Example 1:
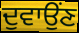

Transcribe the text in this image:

ਦੁਵਾਉਂਣ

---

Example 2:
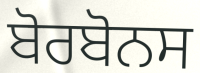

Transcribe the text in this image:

ਬੋਰਬੋਨਸ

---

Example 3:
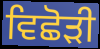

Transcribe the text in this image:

ਵਿਛੋੜੀ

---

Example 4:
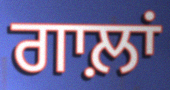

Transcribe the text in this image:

ਗਾਲ਼ਾਂ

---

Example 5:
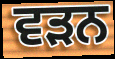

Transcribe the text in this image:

ਵੜਨ